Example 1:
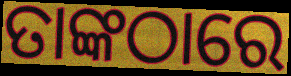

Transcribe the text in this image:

ତାଙ୍କଠାରେ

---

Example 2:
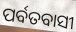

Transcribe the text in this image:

ପର୍ବତବାସୀ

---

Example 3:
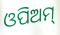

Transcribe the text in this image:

ଓପିଅମ୍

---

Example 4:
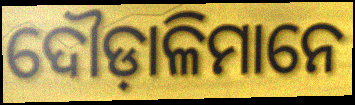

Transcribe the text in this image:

ଦୌଡ଼ାଳିମାନେ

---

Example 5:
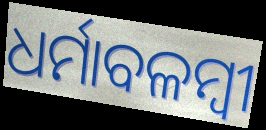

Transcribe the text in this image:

ଧର୍ମାବଳମ୍ବୀ